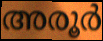
അരൂർ